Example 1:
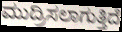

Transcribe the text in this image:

ಮುದ್ರಿಸಲಾಗುತ್ತಿದೆ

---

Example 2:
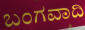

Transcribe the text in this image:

ಬಂಗವಾದಿ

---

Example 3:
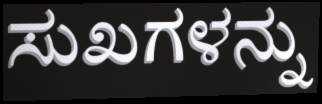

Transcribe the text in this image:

ಸುಖಗಳನ್ನು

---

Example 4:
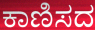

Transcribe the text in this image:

ಕಾಣಿಸದ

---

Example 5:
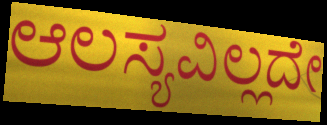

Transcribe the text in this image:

ಆಲಸ್ಯವಿಲ್ಲದೇ